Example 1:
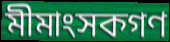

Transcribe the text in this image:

মীমাংসকগণ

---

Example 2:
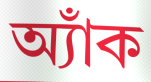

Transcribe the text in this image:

অ্যাঁক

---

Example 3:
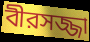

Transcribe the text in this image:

বীরসজ্জা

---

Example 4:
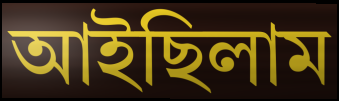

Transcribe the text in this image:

আইছিলাম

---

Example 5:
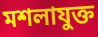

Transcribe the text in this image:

মশলাযুক্ত